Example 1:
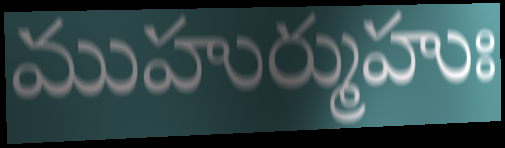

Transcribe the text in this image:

ముహుర్ముహుః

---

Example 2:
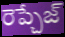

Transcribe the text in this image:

రెప్చేజ్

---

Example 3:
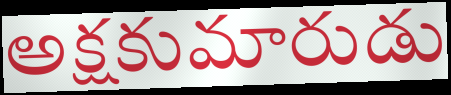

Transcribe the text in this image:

అక్షకుమారుడు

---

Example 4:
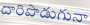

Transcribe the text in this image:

దారిపొడుగునా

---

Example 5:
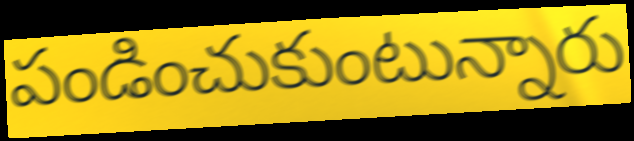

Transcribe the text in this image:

పండించుకుంటున్నారు